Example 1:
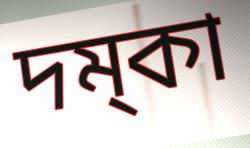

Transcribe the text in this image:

দম্‌কা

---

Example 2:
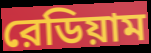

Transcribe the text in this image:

রেডিয়াম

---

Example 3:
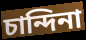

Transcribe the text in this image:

চান্দিনা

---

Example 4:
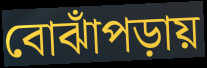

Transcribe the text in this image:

বোঝাঁপড়ায়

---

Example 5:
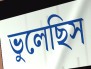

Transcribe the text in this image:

ভুলেছিস